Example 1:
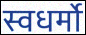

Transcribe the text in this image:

स्वधर्मो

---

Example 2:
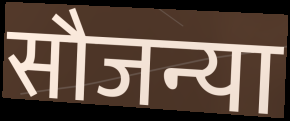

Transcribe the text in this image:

सौजन्या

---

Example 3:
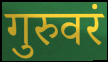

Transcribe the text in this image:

गुरुवरं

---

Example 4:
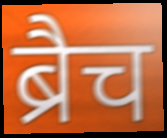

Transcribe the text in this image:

ब्रैच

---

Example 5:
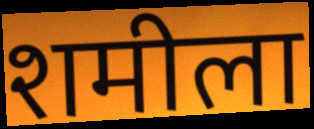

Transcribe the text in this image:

शमीला